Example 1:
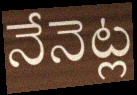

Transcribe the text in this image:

నేనెట్ల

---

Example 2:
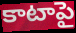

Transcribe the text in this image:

కాటాపై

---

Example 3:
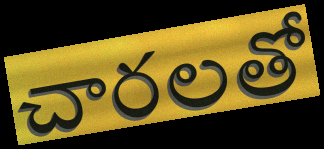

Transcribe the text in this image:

చారలతో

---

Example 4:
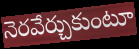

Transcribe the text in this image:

నెరవేర్చుకుంటూ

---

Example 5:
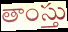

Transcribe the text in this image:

తాంస్తు